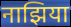
नाझिया